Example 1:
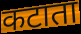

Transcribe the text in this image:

कटाता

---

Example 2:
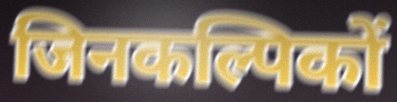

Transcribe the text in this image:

जिनकल्पिकों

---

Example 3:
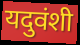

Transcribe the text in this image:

यदुवंशी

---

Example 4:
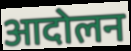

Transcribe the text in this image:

आदोलन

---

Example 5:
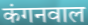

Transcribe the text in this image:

कंगनवाल